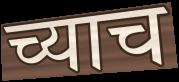
च्याच